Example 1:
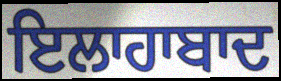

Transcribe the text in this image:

ਇਲਾਹਾਬਾਦ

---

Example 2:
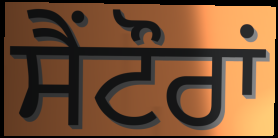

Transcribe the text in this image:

ਸੈਂਟੌਰਾਂ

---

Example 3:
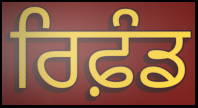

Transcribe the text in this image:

ਰਿਫ਼ੰਡ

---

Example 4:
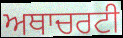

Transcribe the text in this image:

ਅਥਾਚਰਟੀ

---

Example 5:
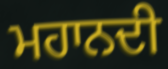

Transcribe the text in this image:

ਮਹਾਨਦੀ